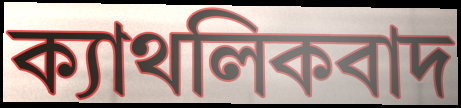
ক্যাথলিকবাদ